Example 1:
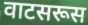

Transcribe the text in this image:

वाटसरूस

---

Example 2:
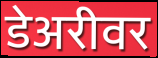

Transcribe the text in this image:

डेअरीवर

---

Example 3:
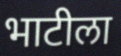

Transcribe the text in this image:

भाटीला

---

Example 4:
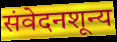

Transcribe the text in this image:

संवेदनशून्य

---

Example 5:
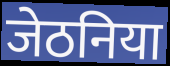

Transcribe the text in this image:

जेठनिया